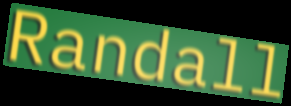
Randall